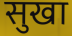
सुखा